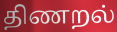
திணறல்